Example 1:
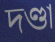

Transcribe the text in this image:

দণ্ডা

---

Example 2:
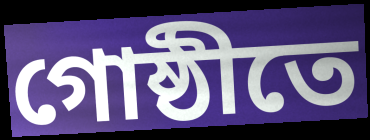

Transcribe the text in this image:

গোষ্ঠীতে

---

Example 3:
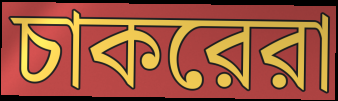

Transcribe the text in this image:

চাকরেরা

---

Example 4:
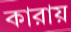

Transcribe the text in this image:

কারায়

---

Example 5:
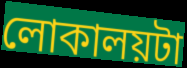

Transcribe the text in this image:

লোকালয়টা